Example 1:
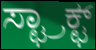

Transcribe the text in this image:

ಸ್ಟ್ರಾಕ್ಟ್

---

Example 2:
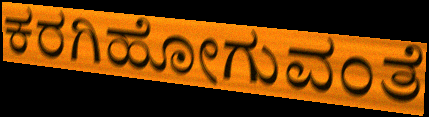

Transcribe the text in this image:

ಕರಗಿಹೋಗುವಂತೆ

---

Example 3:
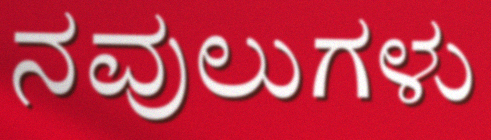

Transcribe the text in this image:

ನವುಲುಗಳು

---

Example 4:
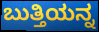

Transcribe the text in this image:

ಬುತ್ತಿಯನ್ನ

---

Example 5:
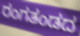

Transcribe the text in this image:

ರಂಗತಂಡದ